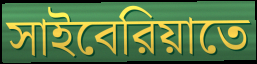
সাইবেরিয়াতে